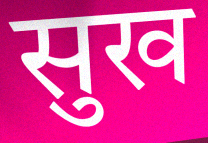
सुख